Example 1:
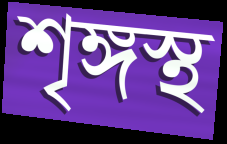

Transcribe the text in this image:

শৃঙ্গস্থ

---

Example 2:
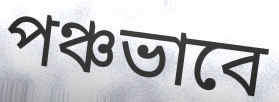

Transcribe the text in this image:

পঞ্চভাবে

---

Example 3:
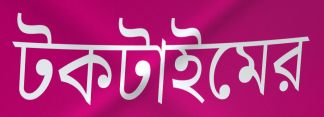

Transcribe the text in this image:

টকটাইমের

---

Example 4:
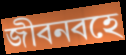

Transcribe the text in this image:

জীবনবহে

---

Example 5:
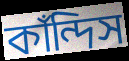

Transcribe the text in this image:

কাঁন্দিস